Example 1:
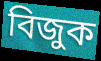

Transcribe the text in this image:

বিজুক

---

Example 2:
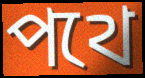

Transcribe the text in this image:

পথে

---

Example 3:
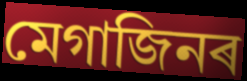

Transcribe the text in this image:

মেগাজিনৰ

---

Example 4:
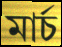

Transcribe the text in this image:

মাৰ্চ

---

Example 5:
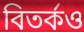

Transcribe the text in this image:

বিতৰ্কও